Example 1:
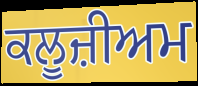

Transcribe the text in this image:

ਕਲੂਜ਼ੀਅਮ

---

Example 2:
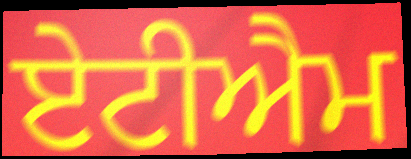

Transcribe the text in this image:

ਏਟੀਐਮ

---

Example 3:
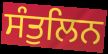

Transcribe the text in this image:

ਸੰਤੁਲਿਨ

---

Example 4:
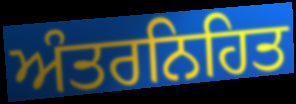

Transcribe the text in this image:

ਅੰਤਰਨਿਹਿਤ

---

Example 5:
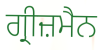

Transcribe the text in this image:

ਗ੍ਰੀਜ਼ਮੈਨ